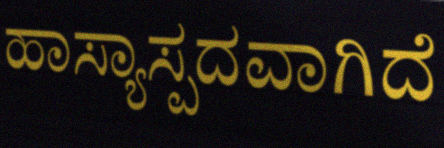
ಹಾಸ್ಯಾಸ್ಪದವಾಗಿದೆ